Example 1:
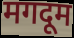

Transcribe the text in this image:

मगदूम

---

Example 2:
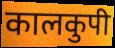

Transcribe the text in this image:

कालकुपी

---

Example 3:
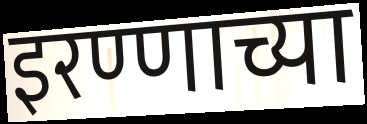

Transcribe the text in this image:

इरण्णाच्या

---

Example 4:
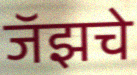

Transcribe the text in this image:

जॅझचे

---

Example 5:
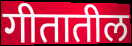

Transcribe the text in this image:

गीतातील